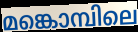
മങ്കൊമ്പിലെ